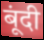
बूंदी